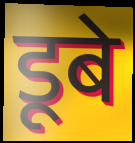
डूबे